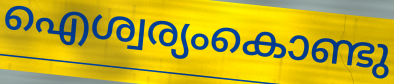
ഐശ്വര്യംകൊണ്ടു